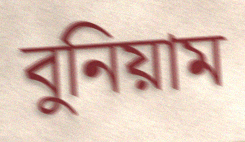
বুনিয়াম